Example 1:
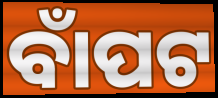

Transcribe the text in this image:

ବାଁପଟ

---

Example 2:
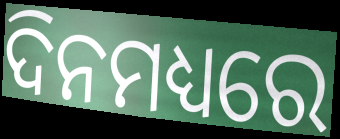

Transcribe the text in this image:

ଦିନମଧ୍ୟରେ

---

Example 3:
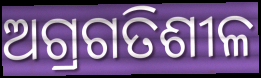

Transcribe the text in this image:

ଅଗ୍ରଗତିଶୀଳ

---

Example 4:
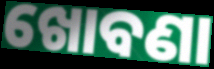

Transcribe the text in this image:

ଖୋବଣା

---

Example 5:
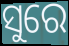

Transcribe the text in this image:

ସୁରେ